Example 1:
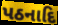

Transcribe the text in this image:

પઠનાદિ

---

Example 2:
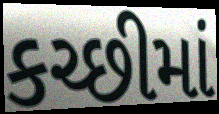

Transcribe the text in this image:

કચ્છીમાં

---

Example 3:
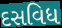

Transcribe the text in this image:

દસવિધ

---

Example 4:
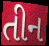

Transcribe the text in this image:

તીન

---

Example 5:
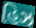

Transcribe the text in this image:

હિઝ